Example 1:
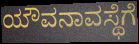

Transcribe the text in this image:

ಯೌವನಾವಸ್ಥೆಗೆ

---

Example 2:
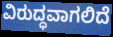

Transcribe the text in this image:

ವಿರುದ್ಧವಾಗಲಿದೆ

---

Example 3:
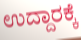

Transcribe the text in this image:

ಉದ್ದಾರಕ್ಕೆ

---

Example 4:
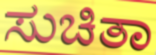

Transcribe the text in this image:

ಸುಚಿತಾ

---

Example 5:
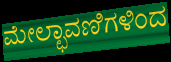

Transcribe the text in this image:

ಮೇಲ್ಛಾವಣಿಗಳಿಂದ